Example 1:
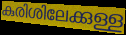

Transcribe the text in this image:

കുരിശിലേക്കുള്ള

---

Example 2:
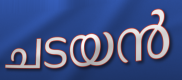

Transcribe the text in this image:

ചടയൻ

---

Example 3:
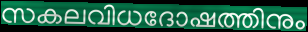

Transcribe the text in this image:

സകലവിധദോഷത്തിനും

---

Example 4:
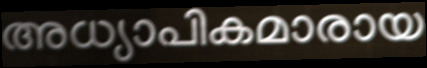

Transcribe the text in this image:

അധ്യാപികമാരായ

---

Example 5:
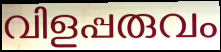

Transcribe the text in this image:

വിളപ്പരുവം